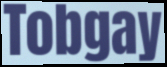
Tobgay